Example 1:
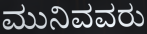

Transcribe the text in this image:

ಮುನಿವವರು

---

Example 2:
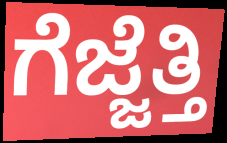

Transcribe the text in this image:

ಗೆಜ್ಜೆತ್ತಿ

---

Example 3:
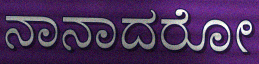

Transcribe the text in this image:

ನಾನಾದರೋ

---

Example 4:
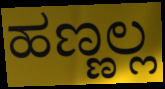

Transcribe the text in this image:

ಹಣ್ಣಲ್ಲ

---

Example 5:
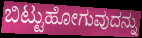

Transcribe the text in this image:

ಬಿಟ್ಟುಹೋಗುವುದನ್ನು